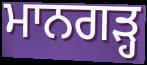
ਮਾਨਗੜ੍ਹ